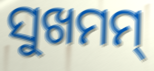
ସୁଖମମ୍